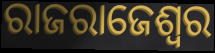
ରାଜରାଜେଶ୍ଵର